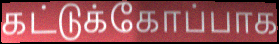
கட்டுக்கோப்பாக